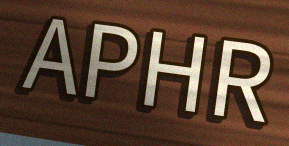
APHR